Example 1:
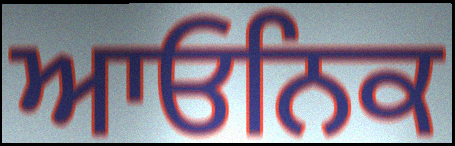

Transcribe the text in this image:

ਆਓਨਿਕ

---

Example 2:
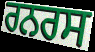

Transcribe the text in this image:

ਰਨਰਸ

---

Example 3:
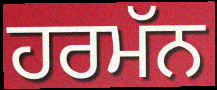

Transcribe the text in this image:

ਹਰਮੱਨ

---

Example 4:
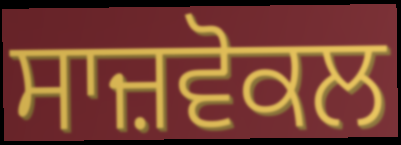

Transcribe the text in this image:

ਸਾਜ਼ਵੋਕਲ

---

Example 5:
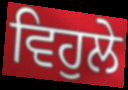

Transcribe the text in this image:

ਵਿਹੁਲੇ